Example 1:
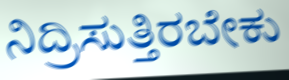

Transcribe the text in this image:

ನಿದ್ರಿಸುತ್ತಿರಬೇಕು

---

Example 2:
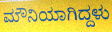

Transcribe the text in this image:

ಮೌನಿಯಾಗಿದ್ದಳು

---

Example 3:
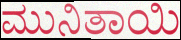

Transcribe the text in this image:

ಮುನಿತಾಯಿ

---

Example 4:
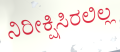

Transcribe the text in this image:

ನಿರೀಕ್ಷಿಸಿರಲಿಲ್ಲ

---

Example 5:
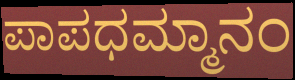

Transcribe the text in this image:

ಪಾಪಧಮ್ಮಾನಂ